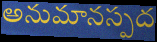
అనుమానస్పద